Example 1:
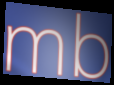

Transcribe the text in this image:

mb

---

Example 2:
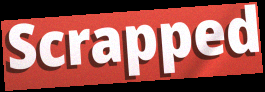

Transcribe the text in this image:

Scrapped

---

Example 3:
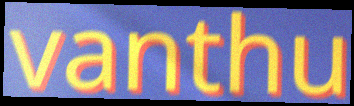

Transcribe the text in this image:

vanthu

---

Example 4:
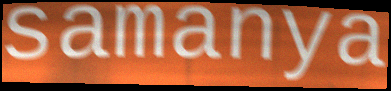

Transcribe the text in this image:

samanya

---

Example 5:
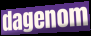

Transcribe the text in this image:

dagenom